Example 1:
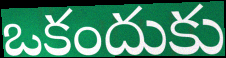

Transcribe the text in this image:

ఒకందుకు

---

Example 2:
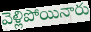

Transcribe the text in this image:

వెళ్లిపోయినారు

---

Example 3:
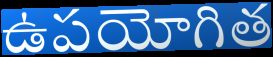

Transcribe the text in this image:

ఉపయోగిత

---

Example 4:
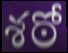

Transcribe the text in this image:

శఠో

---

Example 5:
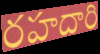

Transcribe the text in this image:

రహదారి